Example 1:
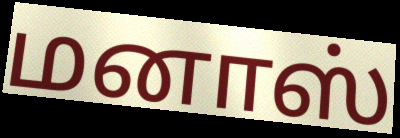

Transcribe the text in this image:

மனாஸ்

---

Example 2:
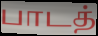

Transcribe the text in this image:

பாடத்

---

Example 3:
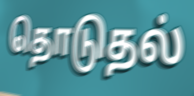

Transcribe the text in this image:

தொடுதல்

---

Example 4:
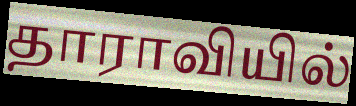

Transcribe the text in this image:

தாராவியில்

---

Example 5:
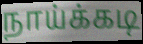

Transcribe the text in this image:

நாய்க்கடி